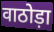
वाठोड़ा